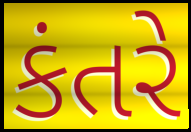
કંતરે